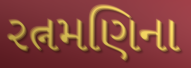
રત્નમણિના